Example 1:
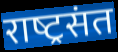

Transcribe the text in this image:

राष्ट्रसंत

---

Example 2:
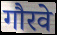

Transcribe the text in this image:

गौरवे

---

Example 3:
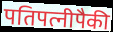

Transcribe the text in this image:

पतिपत्नीपैकी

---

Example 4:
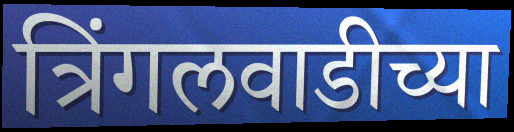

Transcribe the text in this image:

त्रिंगलवाडीच्या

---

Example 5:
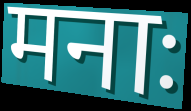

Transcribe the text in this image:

मनाः